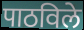
पाठविले